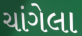
ચાંગેલા